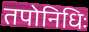
तपोनिधिः